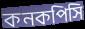
কনকপিসি